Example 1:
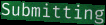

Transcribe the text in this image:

Submitting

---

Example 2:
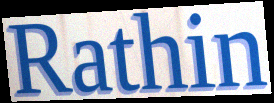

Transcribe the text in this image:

Rathin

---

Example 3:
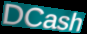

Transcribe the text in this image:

DCash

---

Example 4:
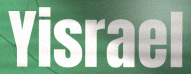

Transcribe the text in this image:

Yisrael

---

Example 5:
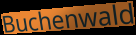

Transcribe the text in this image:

Buchenwald